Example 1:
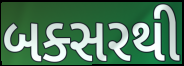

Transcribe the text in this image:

બક્સરથી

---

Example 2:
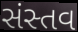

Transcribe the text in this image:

સંસ્તવ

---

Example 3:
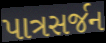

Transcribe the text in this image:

પાત્રસર્જન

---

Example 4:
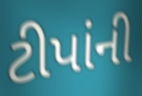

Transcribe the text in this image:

ટીપાંની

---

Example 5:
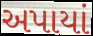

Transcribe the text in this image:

અપાયાં